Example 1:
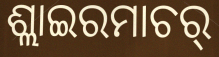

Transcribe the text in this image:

ଶ୍ଲାଇରମାଚର୍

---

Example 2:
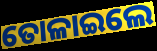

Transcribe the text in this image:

ତୋଳାଇଲେ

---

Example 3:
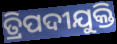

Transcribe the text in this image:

ତ୍ରିପଦୀଯୁକ୍ତି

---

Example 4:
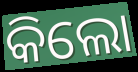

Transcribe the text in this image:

କିଲୋ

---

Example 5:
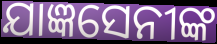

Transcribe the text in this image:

ଯାଜ୍ଞସେନୀଙ୍କ